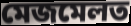
মেজমেলত